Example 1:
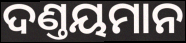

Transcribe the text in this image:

ଦଣ୍ତୟମାନ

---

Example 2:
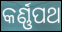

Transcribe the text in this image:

କର୍ଣ୍ଣପଥ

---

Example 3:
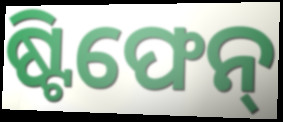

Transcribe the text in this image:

ଷ୍ଟିଫେନ୍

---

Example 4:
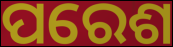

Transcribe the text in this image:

ପରେଶ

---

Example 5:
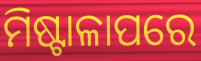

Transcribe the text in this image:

ମିଷ୍ଟାଳାପରେ